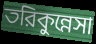
তরিকুন্নেসা